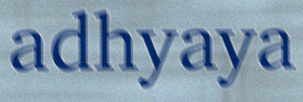
adhyaya